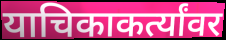
याचिकाकर्त्यांवर